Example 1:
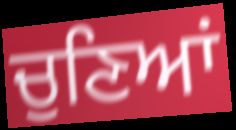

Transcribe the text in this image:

ਚੁਣਿਆਂ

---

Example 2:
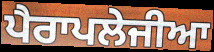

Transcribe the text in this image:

ਪੈਰਾਪਲੇਜੀਆ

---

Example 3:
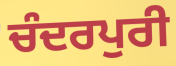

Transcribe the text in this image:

ਚੰਦਰਪੁਰੀ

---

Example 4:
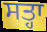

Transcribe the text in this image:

ਸਤ੍ਹਾ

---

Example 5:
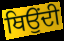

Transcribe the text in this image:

ਥਿਉਂਦੀ